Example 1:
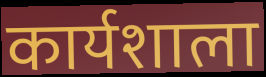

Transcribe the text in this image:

कार्यशाला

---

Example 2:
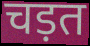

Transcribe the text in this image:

चड़त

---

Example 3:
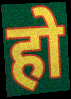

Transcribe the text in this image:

हो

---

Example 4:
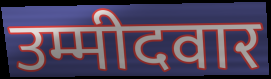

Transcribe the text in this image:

उम्‍मीदवार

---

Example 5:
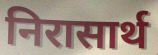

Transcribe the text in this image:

निरासार्थ